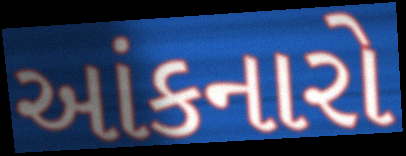
આંકનારો